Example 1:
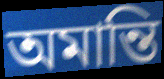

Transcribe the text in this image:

অমান্তি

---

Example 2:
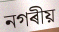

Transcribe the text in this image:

নগৰীয়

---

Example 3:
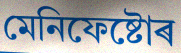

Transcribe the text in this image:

মেনিফেষ্টোৰ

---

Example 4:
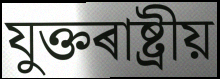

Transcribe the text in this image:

যুক্তৰাষ্ট্ৰীয়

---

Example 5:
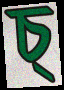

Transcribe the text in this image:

চ্